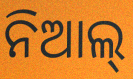
ନିଆଲ୍